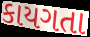
કાયગતા